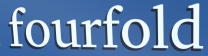
fourfold